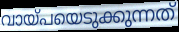
വായ്പയെടുക്കുന്നത്